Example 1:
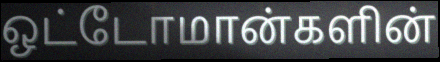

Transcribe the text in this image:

ஒட்டோமான்களின்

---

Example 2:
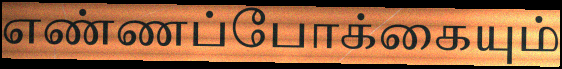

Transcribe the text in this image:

எண்ணப்போக்கையும்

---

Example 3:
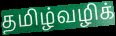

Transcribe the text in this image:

தமிழ்வழிக்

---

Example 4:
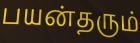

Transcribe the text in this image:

பயன்தரும்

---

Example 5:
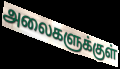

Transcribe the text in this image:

அலைகளுக்குள்